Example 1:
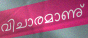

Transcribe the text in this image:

വിചാരമാണു്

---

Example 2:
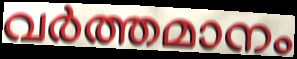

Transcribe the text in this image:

വർത്തമാനം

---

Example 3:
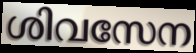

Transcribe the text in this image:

ശിവസേന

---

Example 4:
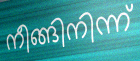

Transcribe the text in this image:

നീങ്ങിനിന്ന്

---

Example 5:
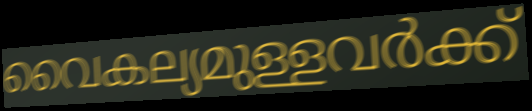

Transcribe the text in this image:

വൈകല്യമുള്ളവർക്ക്